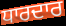
ਧਾਰਦਾਰ